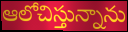
ఆలోచిస్తున్నాను